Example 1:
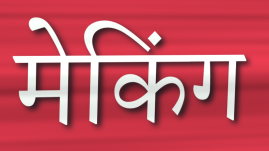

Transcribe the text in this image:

मेकिंग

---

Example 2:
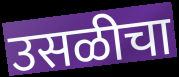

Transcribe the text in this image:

उसळीचा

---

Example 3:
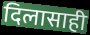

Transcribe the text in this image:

दिलासाही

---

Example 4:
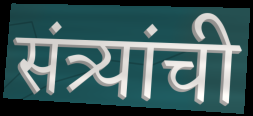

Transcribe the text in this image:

संत्र्यांची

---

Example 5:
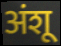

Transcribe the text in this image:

अंशू